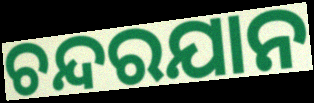
ଚନ୍ଦରଯାନ